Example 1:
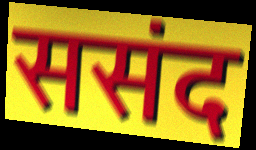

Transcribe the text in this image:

ससंद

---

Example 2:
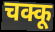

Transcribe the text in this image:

चक्कू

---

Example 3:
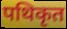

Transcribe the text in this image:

पथिकृत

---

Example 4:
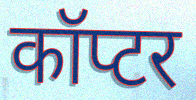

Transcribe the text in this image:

कॉप्टर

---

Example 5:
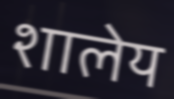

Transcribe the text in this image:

शालेय